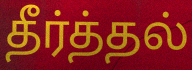
தீர்த்தல்